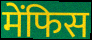
मेंफिस